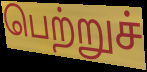
பெற்றுச்